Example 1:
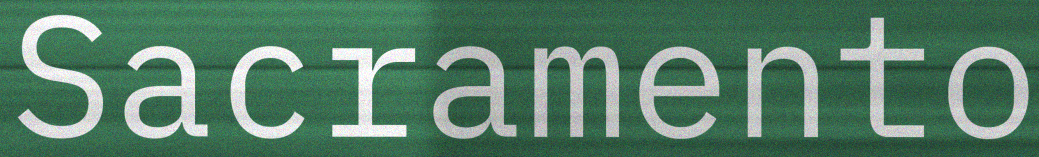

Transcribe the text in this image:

Sacramento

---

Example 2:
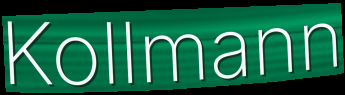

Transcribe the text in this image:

Kollmann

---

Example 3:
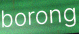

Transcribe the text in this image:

borong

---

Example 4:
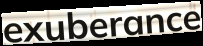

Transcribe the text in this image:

exuberance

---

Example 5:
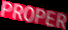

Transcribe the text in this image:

PROPER